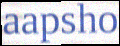
aapsho